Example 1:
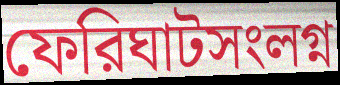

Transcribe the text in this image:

ফেরিঘাটসংলগ্ন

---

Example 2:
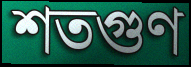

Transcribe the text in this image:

শতগুণ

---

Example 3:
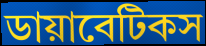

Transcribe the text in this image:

ডায়াবেটিকস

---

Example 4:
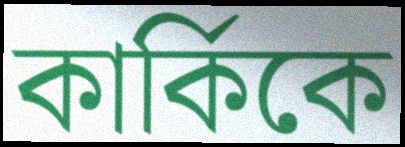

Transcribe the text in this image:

কার্কিকে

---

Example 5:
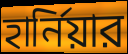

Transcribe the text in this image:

হার্নিয়ার